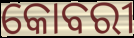
କୋବରୀ